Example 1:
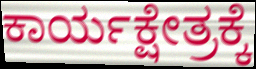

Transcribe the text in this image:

ಕಾರ್ಯಕ್ಷೇತ್ರಕ್ಕೆ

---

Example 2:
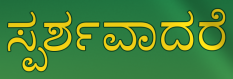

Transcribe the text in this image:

ಸ್ಪರ್ಶವಾದರೆ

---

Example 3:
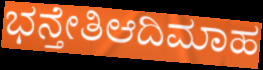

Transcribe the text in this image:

ಭನ್ತೇತಿಆದಿಮಾಹ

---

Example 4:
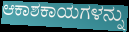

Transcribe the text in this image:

ಆಕಾಶಕಾಯಗಳನ್ನು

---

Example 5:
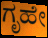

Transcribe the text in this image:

ಗೃಹೇ